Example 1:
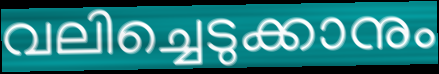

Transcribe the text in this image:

വലിച്ചെടുക്കാനും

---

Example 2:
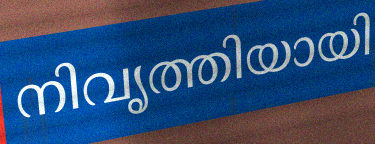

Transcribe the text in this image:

നിവൃത്തിയായി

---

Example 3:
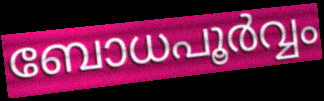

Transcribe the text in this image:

ബോധപൂർവ്വം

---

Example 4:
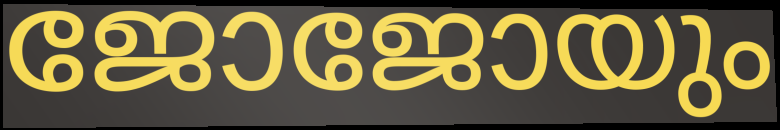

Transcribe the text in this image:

ജോജോയും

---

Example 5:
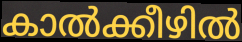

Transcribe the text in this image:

കാൽക്കീഴിൽ